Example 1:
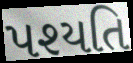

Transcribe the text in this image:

પશ્યતિ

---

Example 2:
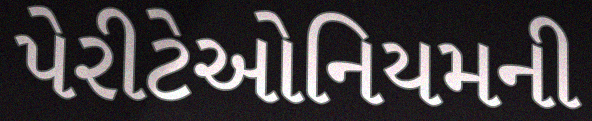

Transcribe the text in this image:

પેરીટેઓનિયમની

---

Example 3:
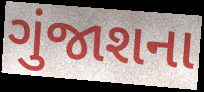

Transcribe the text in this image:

ગુંજાશના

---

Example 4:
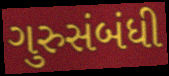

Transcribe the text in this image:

ગુરુસંબંધી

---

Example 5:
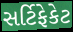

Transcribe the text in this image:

સર્ટિફેકેટ